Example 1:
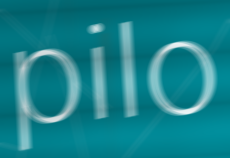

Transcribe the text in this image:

pilo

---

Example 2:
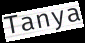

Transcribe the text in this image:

Tanya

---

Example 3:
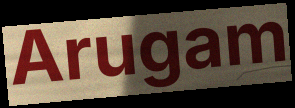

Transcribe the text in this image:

Arugam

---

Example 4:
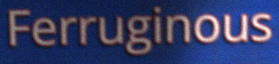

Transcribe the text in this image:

Ferruginous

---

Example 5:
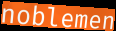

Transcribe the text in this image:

noblemen